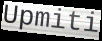
Upmiti